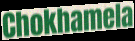
Chokhamela